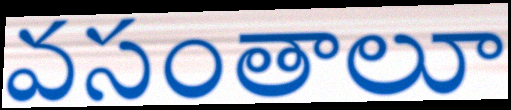
వసంతాలూ